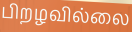
பிறழவில்லை